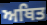
ਅਥਿਤ